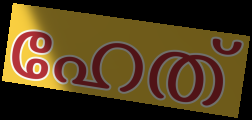
ഹേത്